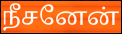
நீசனேன்